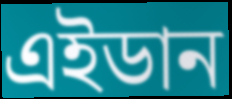
এইডান